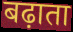
बढ़ाता